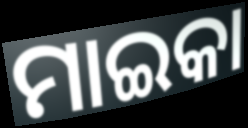
ମାଇକା